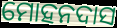
ମୋହନଦାସ